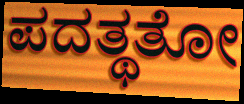
ಪದತ್ಥತೋ